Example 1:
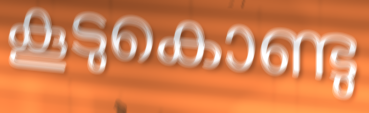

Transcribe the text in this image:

കൂടുകൊണ്ടു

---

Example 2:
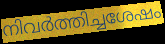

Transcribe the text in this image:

നിവർത്തിച്ചശേഷം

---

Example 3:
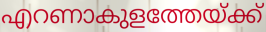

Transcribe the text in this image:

എറണാകുളത്തേയ്ക്ക്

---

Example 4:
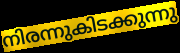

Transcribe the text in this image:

നിരന്നുകിടക്കുന്നു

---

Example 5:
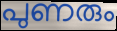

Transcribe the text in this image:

പുണരും